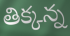
తిక్కన్న